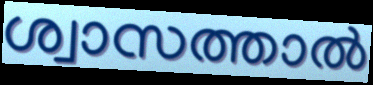
ശ്വാസത്താൽ